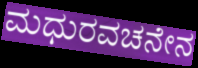
ಮಧುರವಚನೇನ